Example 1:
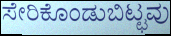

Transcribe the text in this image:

ಸೇರಿಕೊಂಡುಬಿಟ್ಟವು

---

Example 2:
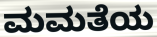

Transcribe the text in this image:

ಮಮತೆಯ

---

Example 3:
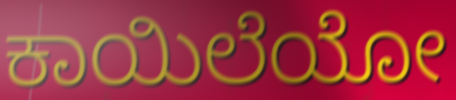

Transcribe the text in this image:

ಕಾಯಿಲೆಯೋ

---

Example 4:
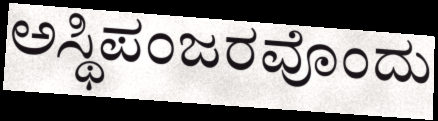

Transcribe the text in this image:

ಅಸ್ಥಿಪಂಜರವೊಂದು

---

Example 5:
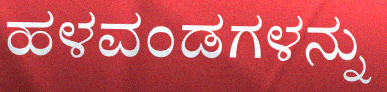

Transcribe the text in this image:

ಹಳವಂಡಗಳನ್ನು